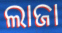
ଲାଜା